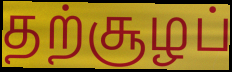
தற்சூழப்